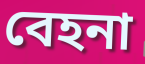
বেহনা